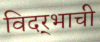
विदर्भाची